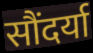
सौंदर्या